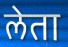
लेता